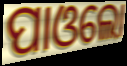
ପାଓଲୋ